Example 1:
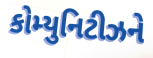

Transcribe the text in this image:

કોમ્યુનિટીઝને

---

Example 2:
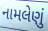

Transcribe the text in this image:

નામલેણું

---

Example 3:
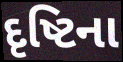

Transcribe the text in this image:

દૃષ્ટિના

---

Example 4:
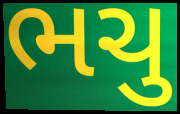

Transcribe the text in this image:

ભચુ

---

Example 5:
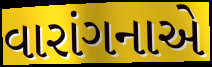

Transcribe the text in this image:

વારાંગનાએ